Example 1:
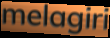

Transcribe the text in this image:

melagiri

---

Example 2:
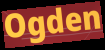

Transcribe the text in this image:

Ogden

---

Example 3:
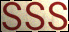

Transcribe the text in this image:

SSS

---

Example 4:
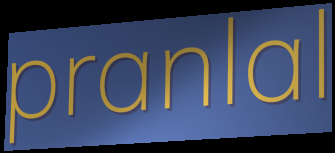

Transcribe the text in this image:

pranlal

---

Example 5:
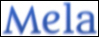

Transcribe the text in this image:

Mela